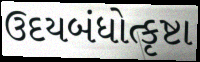
ઉદયબંધોત્કૃષ્ટા